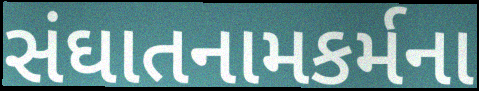
સંઘાતનામકર્મના